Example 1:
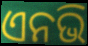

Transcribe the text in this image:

ଏନଭି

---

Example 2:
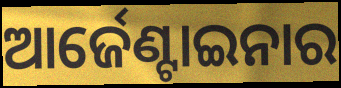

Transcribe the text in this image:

ଆର୍ଜେଣ୍ଟାଇନାର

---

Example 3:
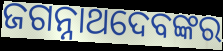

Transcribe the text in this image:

ଜଗନ୍ନାଥଦେବଙ୍କର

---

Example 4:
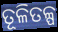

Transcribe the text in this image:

ତୂଳିତଳ୍ପ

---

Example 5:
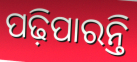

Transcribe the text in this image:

ପଢ଼ିପାରନ୍ତି